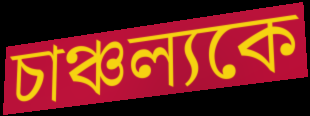
চাঞ্চল্যকে